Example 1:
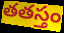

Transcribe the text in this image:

తతస్తం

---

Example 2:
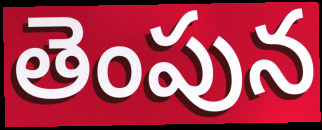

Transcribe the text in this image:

తెంపున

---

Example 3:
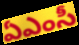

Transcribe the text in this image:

ఏఎంసీ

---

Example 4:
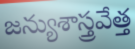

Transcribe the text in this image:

జన్యుశాస్త్రవేత్త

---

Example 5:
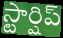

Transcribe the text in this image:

స్టార్షిప్